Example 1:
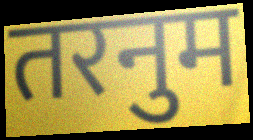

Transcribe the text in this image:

तरनुम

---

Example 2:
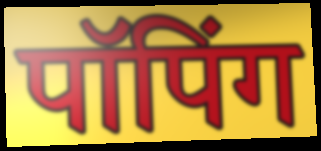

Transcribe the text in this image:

पॉपिंग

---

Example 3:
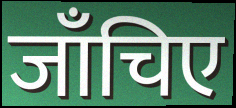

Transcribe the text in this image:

जाँचिए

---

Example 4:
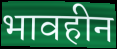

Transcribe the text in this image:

भावहीन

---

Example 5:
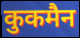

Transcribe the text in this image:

कुकमैन